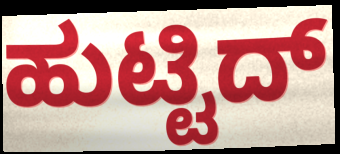
ಹುಟ್ಟಿದ್